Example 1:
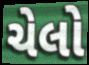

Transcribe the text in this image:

ચેલો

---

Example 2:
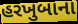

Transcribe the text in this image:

હરખુબાના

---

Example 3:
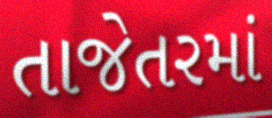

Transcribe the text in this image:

તાજેતરમાં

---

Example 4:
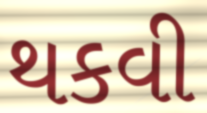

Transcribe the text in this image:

થકવી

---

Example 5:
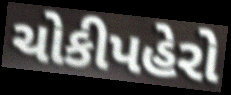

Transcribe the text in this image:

ચોકીપહેરો